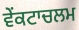
ਵੇਂਕਟਾਚਲਮ